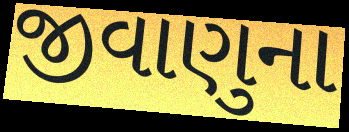
જીવાણુના